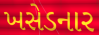
ખસેડનાર